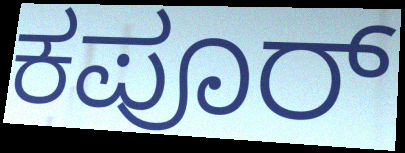
ಕಪೂರ್